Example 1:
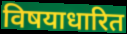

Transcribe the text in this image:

विषयाधारित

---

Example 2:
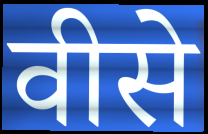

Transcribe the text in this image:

वीसे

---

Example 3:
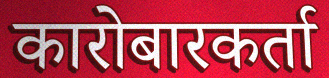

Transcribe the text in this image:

कारोबारकर्ता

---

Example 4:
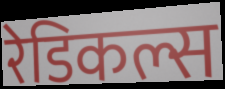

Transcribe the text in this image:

रेडिकल्स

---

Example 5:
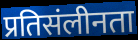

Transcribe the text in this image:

प्रतिसंलीनता